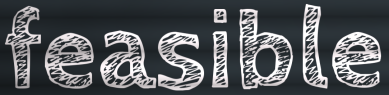
feasible